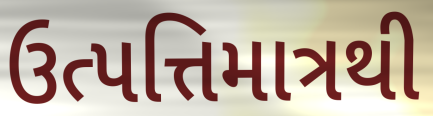
ઉત્પત્તિમાત્રથી